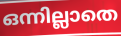
ഒന്നില്ലാതെ